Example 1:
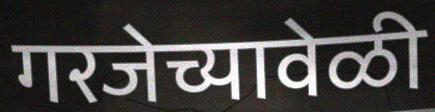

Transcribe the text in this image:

गरजेच्यावेळी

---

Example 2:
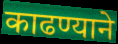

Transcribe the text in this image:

काढण्याने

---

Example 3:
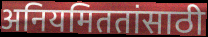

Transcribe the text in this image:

अनियमिततांसाठी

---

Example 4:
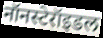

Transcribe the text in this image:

नॉनस्टेरॉइडल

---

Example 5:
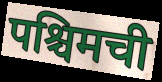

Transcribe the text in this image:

पश्चिमची